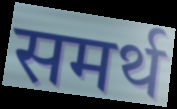
समर्थ